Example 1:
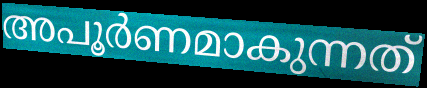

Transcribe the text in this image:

അപൂർണമാകുന്നത്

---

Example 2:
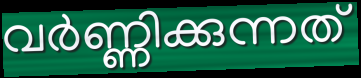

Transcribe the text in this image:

വർണ്ണിക്കുന്നത്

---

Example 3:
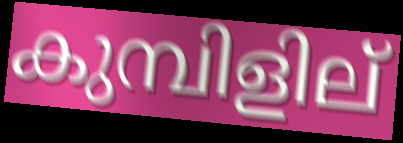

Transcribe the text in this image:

കുമ്പിളില്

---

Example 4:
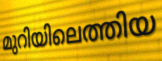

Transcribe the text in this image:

മുറിയിലെത്തിയ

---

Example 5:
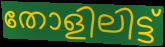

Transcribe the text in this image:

തോളിലിട്ട്